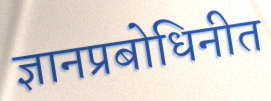
ज्ञानप्रबोधिनीत